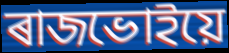
ৰাজভোইয়ে